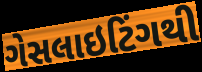
ગેસલાઇટિંગથી